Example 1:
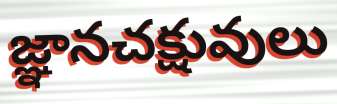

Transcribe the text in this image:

జ్ఞానచక్షువులు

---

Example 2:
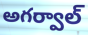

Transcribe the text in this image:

అగర్వాల్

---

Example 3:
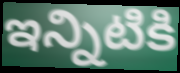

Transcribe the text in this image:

ఇన్నిటికి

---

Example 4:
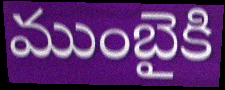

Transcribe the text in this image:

ముంబైకి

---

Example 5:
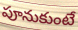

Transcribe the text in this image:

పూనుకుంటే